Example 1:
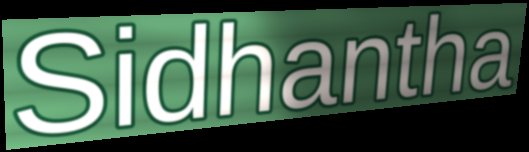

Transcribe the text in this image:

Sidhantha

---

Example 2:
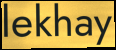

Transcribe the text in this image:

lekhay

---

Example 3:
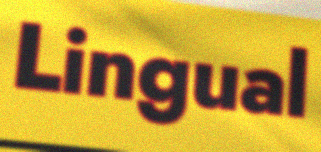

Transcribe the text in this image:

Lingual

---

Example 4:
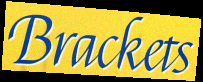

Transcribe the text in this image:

Brackets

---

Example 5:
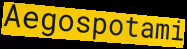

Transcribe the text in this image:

Aegospotami